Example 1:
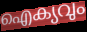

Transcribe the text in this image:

ഐക്യവും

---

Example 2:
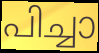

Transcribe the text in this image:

പിച്ചാ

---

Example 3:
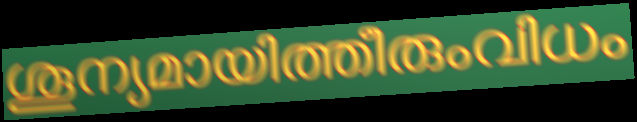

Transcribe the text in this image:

ശൂന്യമായിത്തീരുംവിധം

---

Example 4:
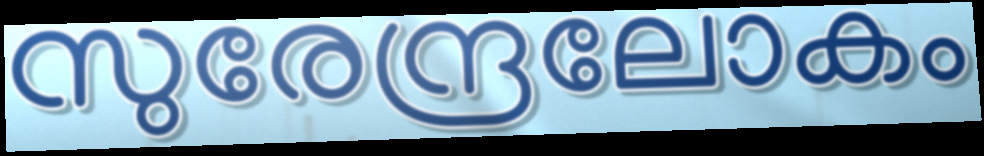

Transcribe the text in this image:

സുരേന്ദ്രലോകം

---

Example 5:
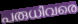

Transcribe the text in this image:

പരുധിവരെ